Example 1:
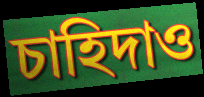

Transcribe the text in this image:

চাহিদাও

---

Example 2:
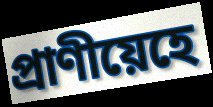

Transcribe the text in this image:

প্ৰাণীয়েহে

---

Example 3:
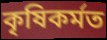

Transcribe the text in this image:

কৃষিকৰ্মত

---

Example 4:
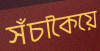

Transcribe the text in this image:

সঁচাকৈয়ে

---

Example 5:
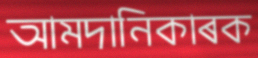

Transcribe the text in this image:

আমদানিকাৰক